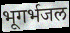
भूगर्भजल